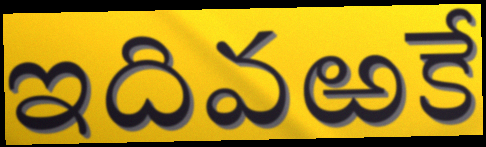
ఇదివఱకే